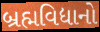
બ્રહ્મવિદ્યાનો